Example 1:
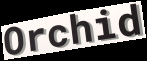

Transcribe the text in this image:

Orchid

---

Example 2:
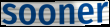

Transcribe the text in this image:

sooner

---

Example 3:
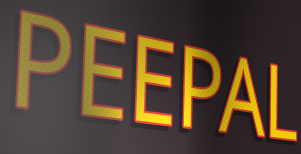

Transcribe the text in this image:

PEEPAL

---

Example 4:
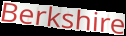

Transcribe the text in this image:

Berkshire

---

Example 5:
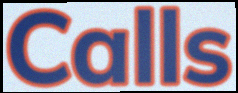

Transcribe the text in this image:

Calls